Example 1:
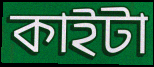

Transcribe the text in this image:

কাইটা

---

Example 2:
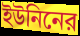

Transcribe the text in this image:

ইউনিনের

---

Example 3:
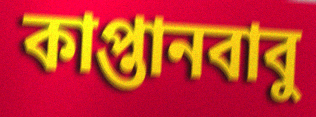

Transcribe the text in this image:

কাপ্তানবাবু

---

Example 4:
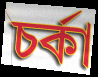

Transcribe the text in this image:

চর্কা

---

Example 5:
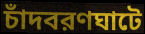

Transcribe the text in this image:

চাঁদবরণঘাটে